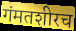
गंमतशीरच